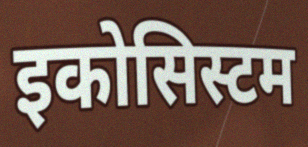
इकोसिस्टम